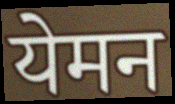
येमन